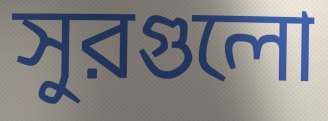
সুরগুলো